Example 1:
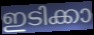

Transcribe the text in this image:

ഇടിക്കാ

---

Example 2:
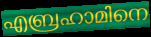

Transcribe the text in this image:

എബ്രഹാമിനെ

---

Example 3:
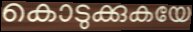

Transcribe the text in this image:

കൊടുക്കുകയേ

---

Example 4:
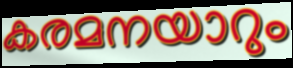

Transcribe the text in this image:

കരമനയാറും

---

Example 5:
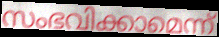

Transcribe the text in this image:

സംഭവിക്കാമെന്ന്